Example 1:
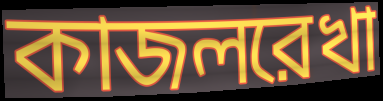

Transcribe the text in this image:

কাজলরেখা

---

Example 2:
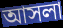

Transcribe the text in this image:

আসলা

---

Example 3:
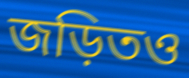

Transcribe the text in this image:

জড়িতও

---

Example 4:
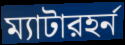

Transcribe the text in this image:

ম্যাটারহর্ন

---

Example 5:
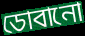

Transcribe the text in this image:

ডোবানো